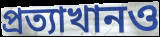
প্রত্যাখানও